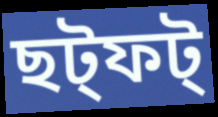
ছট্ফট্